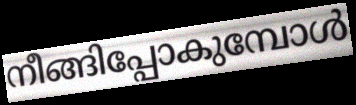
നീങ്ങിപ്പോകുമ്പോൾ